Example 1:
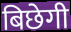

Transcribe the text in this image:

बिछेगी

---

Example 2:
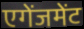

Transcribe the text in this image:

एगेंजमेंट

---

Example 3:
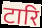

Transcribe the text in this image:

टारि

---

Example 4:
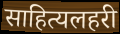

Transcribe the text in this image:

साहित्यलहरी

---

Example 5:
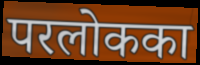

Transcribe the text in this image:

परलोकका